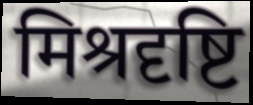
मिश्रदृष्टि